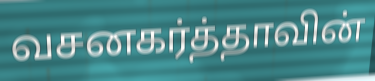
வசனகர்த்தாவின்